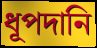
ধূপদানি